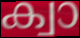
ക്വാ